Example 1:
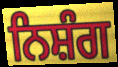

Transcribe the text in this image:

ਨਿਸ਼ੰਗ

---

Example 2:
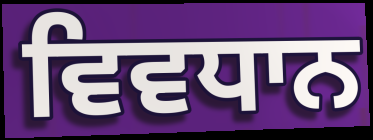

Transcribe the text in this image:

ਵਿਵਧਾਨ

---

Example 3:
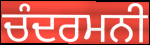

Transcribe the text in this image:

ਚੰਦਰਮਨੀ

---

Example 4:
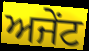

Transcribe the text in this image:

ਅਜੇਂਟ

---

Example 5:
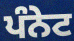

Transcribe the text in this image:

ਪੰਨੇਟ